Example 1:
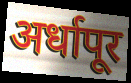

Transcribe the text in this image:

अर्धापूर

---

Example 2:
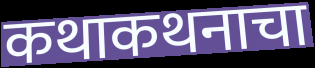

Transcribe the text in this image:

कथाकथनाचा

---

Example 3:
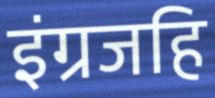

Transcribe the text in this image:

इंग्रजहि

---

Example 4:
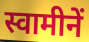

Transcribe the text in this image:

स्वामीनें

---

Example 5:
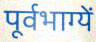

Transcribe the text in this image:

पूर्वभाग्यें